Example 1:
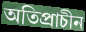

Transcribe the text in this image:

অতিপ্রাচীন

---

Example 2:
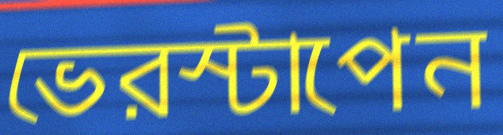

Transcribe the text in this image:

ভেরস্টাপেন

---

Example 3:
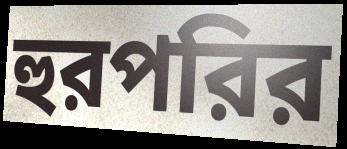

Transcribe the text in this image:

হুরপরির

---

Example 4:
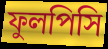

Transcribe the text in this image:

ফুলপিসি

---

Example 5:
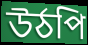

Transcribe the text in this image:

উঠপি